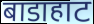
बाडाहाट